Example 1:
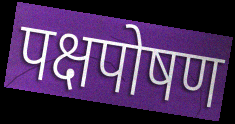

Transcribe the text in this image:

पक्षपोषण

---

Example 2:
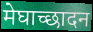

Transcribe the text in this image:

मेघाच्छादन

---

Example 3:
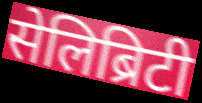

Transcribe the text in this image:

सेलिब्रिटी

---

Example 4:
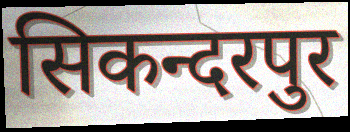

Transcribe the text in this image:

सिकन्दरपुर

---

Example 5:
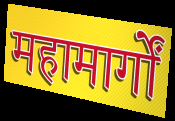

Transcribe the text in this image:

महामार्गों